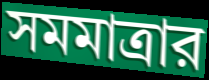
সমমাত্রার